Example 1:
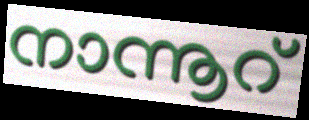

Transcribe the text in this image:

നാന്നൂറ്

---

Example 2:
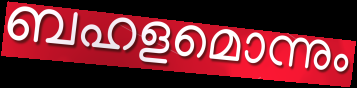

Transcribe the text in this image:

ബഹളമൊന്നും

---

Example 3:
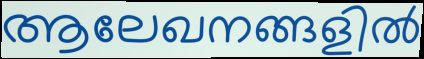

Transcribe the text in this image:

ആലേഖനങ്ങളിൽ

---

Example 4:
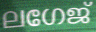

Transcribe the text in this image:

ലഗേജ്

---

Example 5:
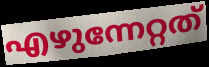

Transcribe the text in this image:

എഴുന്നേറ്റത്